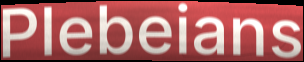
Plebeians